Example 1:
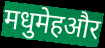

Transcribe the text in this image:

मधुमेहऔर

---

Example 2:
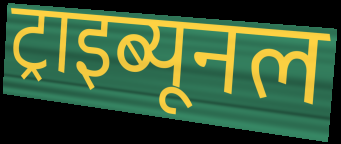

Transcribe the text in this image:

ट्राइब्यूनल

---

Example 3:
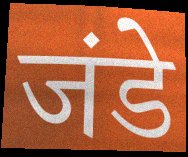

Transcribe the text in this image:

जंडे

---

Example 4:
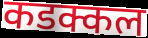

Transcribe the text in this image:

कडक्कल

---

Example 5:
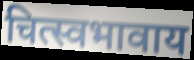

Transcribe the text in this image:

चित्स्वभावाय